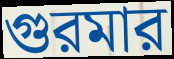
গুরমার